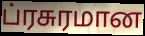
ப்ரசுரமான